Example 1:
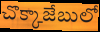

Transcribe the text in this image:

చొక్కాజేబులో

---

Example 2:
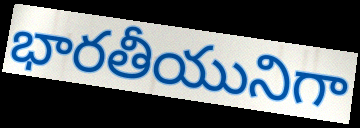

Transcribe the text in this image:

భారతీయునిగా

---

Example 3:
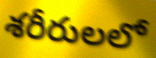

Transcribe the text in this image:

శరీరులలో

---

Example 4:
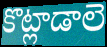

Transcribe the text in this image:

కొట్లాడాలె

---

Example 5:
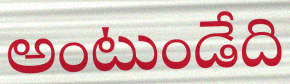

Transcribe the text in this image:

అంటుండేది